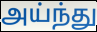
அய்ந்து